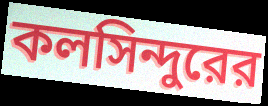
কলসিন্দুরের